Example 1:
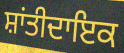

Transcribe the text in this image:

ਸ਼ਾਂਤੀਦਾਇਕ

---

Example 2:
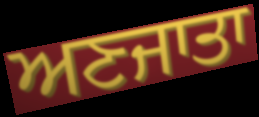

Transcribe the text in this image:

ਅਣਜਾਤਾ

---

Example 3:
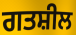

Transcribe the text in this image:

ਗਤਸ਼ੀਲ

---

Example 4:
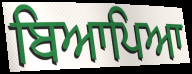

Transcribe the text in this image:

ਬਿਆਪਿਆ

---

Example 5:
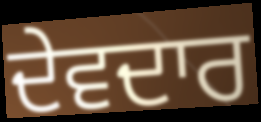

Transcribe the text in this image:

ਦੇਵਦਾਰ